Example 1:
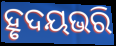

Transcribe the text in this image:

ହୃଦୟଭରି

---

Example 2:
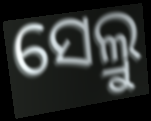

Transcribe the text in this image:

ସେଲ୍ରୁ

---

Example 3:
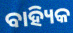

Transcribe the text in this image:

ବାହ୍ୟିକ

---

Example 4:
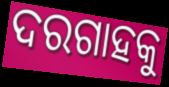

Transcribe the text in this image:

ଦରଗାହକୁ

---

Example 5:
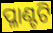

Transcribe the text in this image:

ପ୍ଳାଣ୍ଟଟି